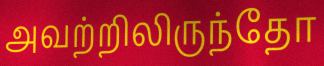
அவற்றிலிருந்தோ